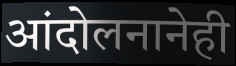
आंदोलनानेही